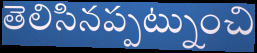
తెలిసినప్పట్నుంచి